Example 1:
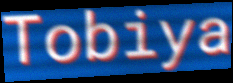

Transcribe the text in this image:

Tobiya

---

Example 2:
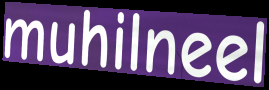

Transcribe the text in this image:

muhilneel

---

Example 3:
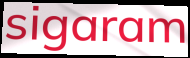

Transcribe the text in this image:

sigaram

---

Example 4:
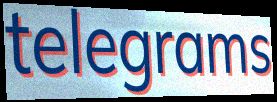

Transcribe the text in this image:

telegrams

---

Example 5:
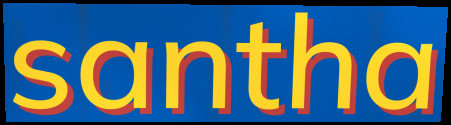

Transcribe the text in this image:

santha